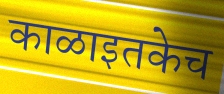
काळाइतकेच